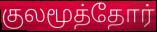
குலமூத்தோர்